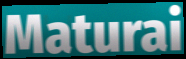
Maturai